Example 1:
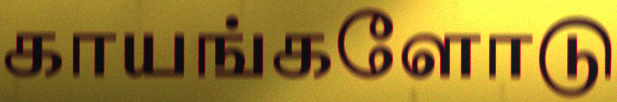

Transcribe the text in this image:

காயங்களோடு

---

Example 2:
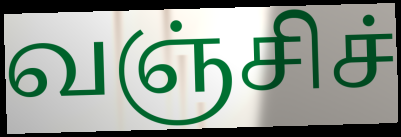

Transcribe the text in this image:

வஞ்சிச்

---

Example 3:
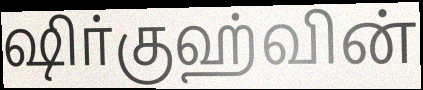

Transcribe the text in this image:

ஷிர்குஹ்வின்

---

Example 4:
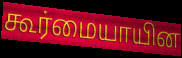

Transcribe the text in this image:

கூர்மையாயின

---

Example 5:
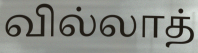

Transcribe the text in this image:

வில்லாத்